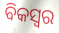
ବିକସ୍ୱର